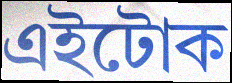
এইটোক